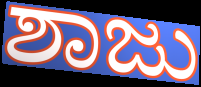
ಶಾಜು